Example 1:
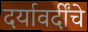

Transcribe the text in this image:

दर्यावर्दींचे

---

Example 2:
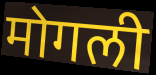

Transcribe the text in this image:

मोगली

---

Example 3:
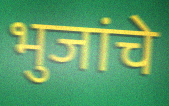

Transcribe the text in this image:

भुजांचे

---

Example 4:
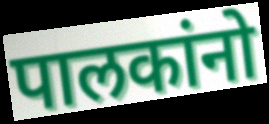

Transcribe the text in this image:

पालकांनो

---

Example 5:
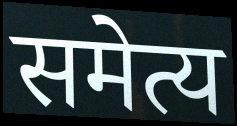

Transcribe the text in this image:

समेत्य